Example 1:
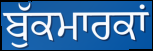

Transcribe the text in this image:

ਬੁੱਕਮਾਰਕਾਂ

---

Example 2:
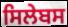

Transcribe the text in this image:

ਸਿਲੇਬਸ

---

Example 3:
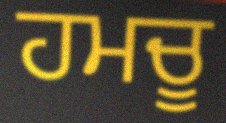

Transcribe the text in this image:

ਹਮਚੂ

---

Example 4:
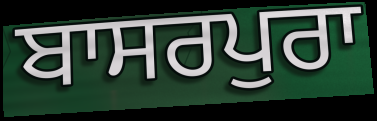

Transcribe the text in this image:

ਬਾਸਰਪੁਰਾ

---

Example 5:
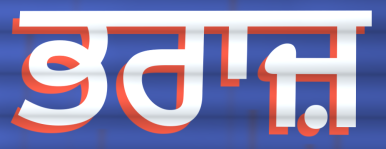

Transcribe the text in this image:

ਭਰਾਜ਼